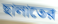
ছালাতের